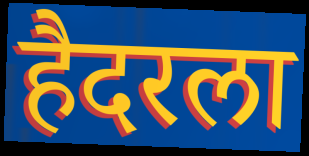
हैदरला